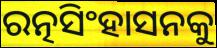
ରତ୍ନସିଂହାସନକୁ